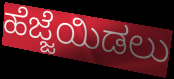
ಹೆಜ್ಜೆಯಿಡಲು